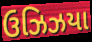
ઉઝિઝયા